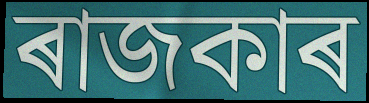
ৰাজকাৰ